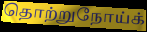
தொற்றுநோய்க்